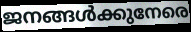
ജനങ്ങൾക്കുനേരെ